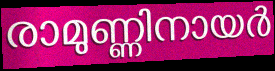
രാമുണ്ണിനായർ